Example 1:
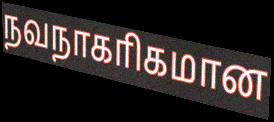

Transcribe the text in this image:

நவநாகரிகமான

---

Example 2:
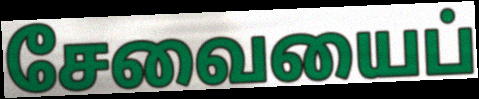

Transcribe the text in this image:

சேவையைப்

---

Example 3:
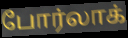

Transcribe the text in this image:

போர்லாக்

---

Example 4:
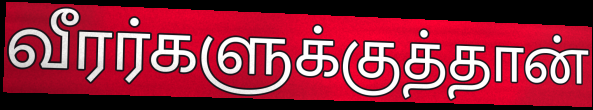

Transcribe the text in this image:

வீரர்களுக்குத்தான்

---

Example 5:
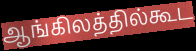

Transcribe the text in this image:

ஆங்கிலத்தில்கூட